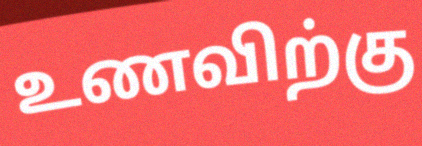
உணவிற்கு